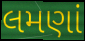
લમણાં